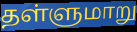
தள்ளுமாறு